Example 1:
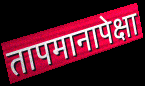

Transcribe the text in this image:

तापमानापेक्षा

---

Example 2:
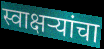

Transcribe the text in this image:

स्वाक्षऱ्यांचा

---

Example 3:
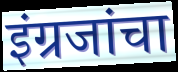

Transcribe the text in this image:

इंग्रजांचा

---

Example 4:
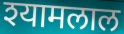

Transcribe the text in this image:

श्यामलाल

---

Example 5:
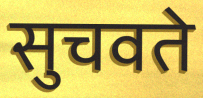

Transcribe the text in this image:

सुचवते